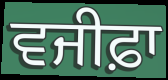
ਵਜੀਫ਼ਾ